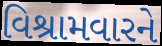
વિશ્રામવારને